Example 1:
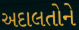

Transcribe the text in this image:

અદાલતોને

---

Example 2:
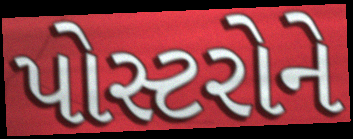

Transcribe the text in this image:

પોસ્ટરોને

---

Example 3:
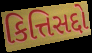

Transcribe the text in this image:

કિત્તિસદ્દો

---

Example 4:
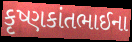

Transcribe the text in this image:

કૃષ્ણકાંતભાઈના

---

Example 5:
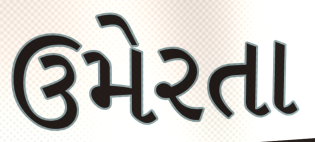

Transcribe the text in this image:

ઉમેરતા